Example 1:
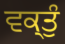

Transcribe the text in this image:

ਵਕ੍ਤੁੰ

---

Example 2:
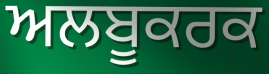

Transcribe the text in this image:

ਅਲਬੂਕਰਕ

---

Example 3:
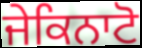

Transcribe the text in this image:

ਜੇਕਿਨਾਟੋ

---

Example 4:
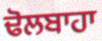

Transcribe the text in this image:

ਢੋਲਬਾਹਾ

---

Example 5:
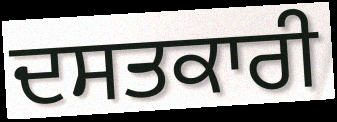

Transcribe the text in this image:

ਦਸਤਕਾਰੀ